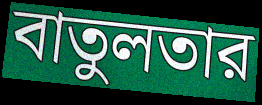
বাতুলতার